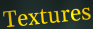
Textures